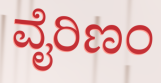
ವೈರಿಣಂ